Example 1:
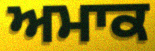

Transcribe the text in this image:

ਅਮਾਕ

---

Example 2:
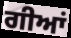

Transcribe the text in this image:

ਗੀਆਂ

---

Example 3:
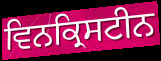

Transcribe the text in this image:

ਵਿਨਕ੍ਰਿਸਟੀਨ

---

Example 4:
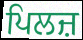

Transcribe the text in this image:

ਪਿਲਜ਼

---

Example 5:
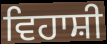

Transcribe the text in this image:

ਵਿਹਾਸ਼ੀ